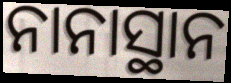
ନାନାସ୍ଥାନ